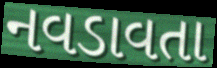
નવડાવતા